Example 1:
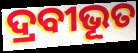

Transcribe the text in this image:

ଦ୍ରବୀଭୂତ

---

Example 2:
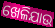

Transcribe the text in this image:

ଖେଳିଯାଉ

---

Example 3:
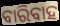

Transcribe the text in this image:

ବାରିବାହ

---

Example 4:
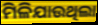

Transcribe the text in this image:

ମିଳିଯାଉଥିଲା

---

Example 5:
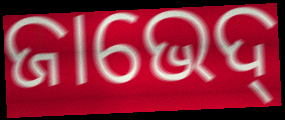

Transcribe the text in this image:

ଜାଭେଦ୍